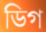
ডিগ